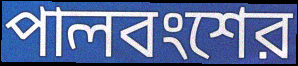
পালবংশের